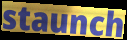
staunch